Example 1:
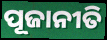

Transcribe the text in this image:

ପୂଜାନୀତି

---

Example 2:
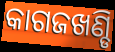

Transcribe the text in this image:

କାଗଜଖଣ୍ଡି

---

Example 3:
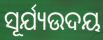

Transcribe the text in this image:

ସୂର୍ଯ୍ୟଉଦୟ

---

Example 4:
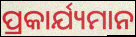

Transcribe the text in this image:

ପ୍ରକାର୍ଯ୍ୟମାନ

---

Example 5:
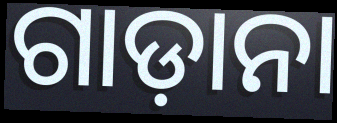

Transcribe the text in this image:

ଗାଡ଼ାନା